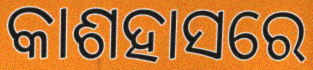
କାଶହାସରେ